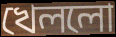
খেললো